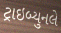
ટ્રાઇબ્યુનલે